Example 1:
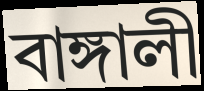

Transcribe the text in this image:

বাঙ্গালী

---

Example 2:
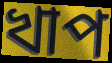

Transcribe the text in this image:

খাপ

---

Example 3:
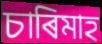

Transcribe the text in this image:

চাৰিমাহ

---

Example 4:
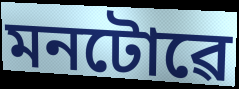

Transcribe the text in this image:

মনটোৱে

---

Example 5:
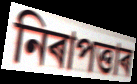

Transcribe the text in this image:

নিৰাপত্তাৰ